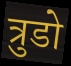
त्रुडो